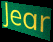
Jear